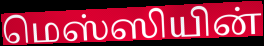
மெஸ்ஸியின்